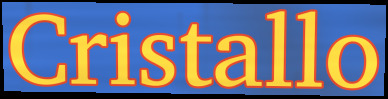
Cristallo